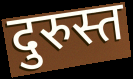
दुरुस्त